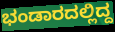
ಭಂಡಾರದಲ್ಲಿದ್ದ